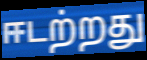
ஈடற்றது